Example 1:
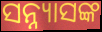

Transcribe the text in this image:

ସନ୍ନ୍ୟାସଙ୍କ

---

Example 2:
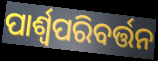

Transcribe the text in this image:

ପାର୍ଶ୍ଵପରିବର୍ତ୍ତନ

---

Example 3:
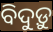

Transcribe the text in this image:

ବିଦୁଡ଼ୁ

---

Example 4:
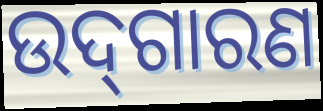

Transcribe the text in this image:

ଉଦ୍‌ଗାରଣ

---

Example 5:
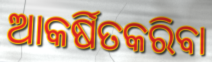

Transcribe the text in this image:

ଆକର୍ଷିତକରିବା